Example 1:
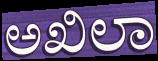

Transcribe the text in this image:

ಅಖಿಲಾ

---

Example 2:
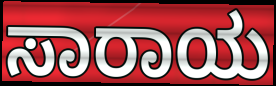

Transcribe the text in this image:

ಸಾರಾಯ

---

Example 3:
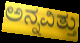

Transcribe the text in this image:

ಅನ್ನವಿತ್ತು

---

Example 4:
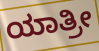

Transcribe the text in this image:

ಯಾತ್ರೀ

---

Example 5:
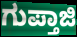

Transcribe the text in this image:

ಗುಪ್ತಾಜಿ